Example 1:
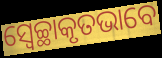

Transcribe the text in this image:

ସ୍ୱେଚ୍ଛାକୃତଭାବେ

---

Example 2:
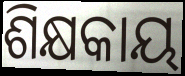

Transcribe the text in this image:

ଶିକ୍ଷକାୟ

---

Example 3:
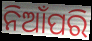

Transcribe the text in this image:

ନିଆଁପରି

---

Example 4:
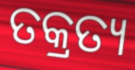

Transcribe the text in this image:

ତକ୍ରତ୍ୟ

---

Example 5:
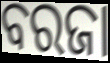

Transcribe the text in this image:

ବରଜା